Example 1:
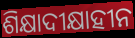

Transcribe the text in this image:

ଶିକ୍ଷାଦୀକ୍ଷାହୀନ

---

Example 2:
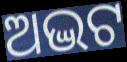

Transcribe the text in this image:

ଅଦ୍ଭଟ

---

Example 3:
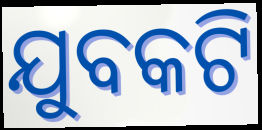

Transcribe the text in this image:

ଯୁବକଟି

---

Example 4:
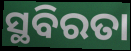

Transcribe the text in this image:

ସ୍ଥବିରତା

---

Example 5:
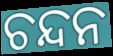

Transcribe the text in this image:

ଚନ୍ଦନ